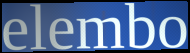
elembo